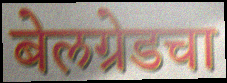
बेलग्रेडचा